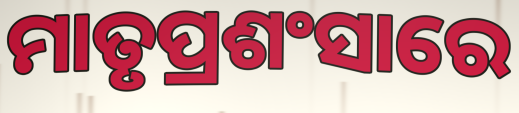
ମାତୃପ୍ରଶଂସାରେ